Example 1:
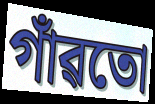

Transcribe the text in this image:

গাঁৱতো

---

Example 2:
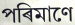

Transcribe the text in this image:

পৰিমাণে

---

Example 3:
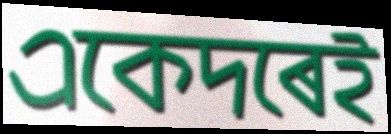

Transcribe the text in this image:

একেদৰেই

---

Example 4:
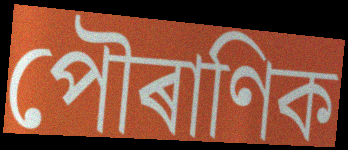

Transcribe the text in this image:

পৌৰাণিক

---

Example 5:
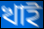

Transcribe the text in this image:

খাই